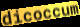
dicoccum